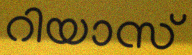
റിയാസ്